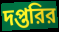
দপ্তরির